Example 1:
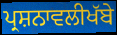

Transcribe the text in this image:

ਪ੍ਰਸ਼ਨਾਵਲੀਖੱਬੇ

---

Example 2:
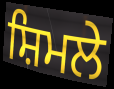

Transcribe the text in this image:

ਸ਼ਿਮਲੇ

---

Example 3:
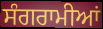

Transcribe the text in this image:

ਸੰਗਰਾਮੀਆਂ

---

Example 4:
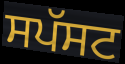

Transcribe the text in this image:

ਸਪੱਸਟ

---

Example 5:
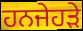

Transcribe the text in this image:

ਹਨਜੇਹੜੇ